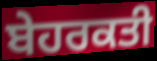
ਬੇਹਰਕਤੀ